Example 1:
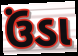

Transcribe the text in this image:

ઉંડા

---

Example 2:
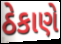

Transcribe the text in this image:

ઠેકાણે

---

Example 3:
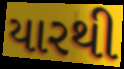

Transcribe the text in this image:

યારથી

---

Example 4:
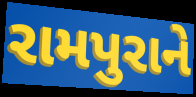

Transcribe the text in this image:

રામપુરાને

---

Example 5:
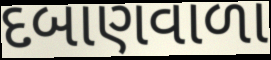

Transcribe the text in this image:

દબાણવાળા